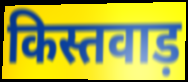
किस्तवाड़